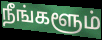
நீங்களூம்